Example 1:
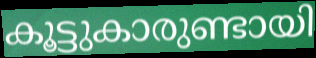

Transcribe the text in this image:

കൂട്ടുകാരുണ്ടായി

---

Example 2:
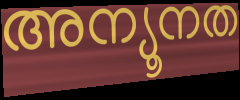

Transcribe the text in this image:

അന്യൂനത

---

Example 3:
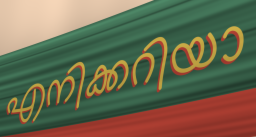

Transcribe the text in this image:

എനിക്കറിയാ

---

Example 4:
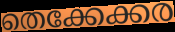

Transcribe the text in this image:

തെക്കേക്കര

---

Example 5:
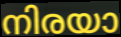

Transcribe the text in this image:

നിരയാ